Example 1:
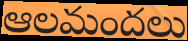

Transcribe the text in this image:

ఆలమందలు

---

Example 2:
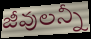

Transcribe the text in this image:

జీవులన్నీ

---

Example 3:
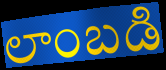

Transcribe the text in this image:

లాంబడి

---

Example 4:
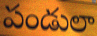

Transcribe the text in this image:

పండులా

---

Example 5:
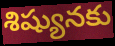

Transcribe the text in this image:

శిష్యునకు